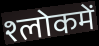
श्लोकमें